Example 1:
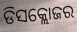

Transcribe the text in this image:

ଡିସକ୍ଲୋଜର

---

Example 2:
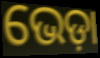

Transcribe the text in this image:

ଭେଡ଼ା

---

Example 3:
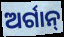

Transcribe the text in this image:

ଅର୍ଗାନ୍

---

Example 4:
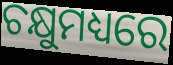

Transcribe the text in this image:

ଚକ୍ଷୁମଧ୍ଯରେ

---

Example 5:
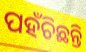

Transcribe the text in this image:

ପହଁଚିଛନ୍ତି